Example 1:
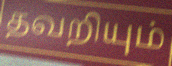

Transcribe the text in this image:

தவறியும்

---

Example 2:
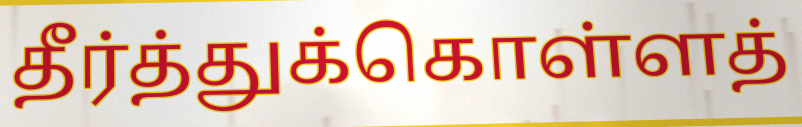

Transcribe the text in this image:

தீர்த்துக்கொள்ளத்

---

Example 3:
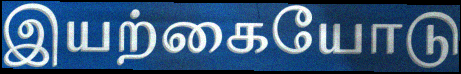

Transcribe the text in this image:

இயற்கையோடு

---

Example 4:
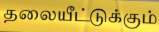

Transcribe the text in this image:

தலையீட்டுக்கும்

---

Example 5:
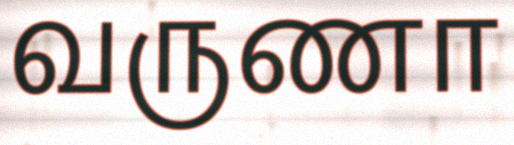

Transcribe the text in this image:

வருணா